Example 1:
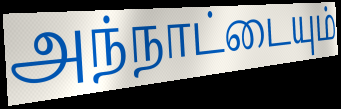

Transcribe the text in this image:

அந்நாட்டையும்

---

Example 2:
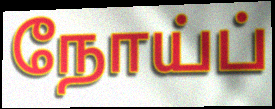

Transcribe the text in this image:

நோய்ப்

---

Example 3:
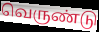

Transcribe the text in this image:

வெருண்டு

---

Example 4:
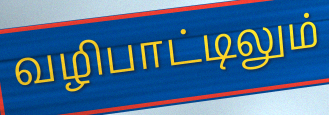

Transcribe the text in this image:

வழிபாட்டிலும்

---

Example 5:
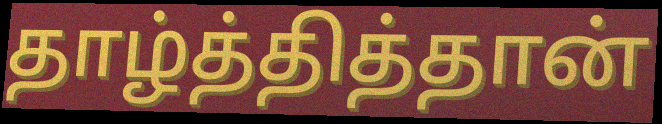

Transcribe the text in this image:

தாழ்த்தித்தான்